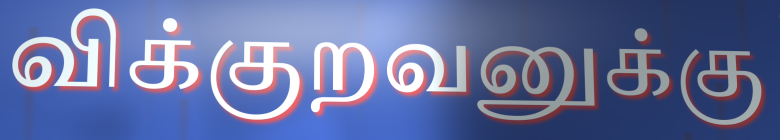
விக்குறவனுக்கு